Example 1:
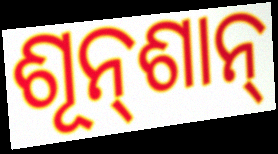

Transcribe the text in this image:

ଶୂନ୍‌ଶାନ୍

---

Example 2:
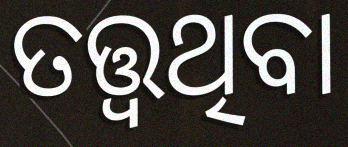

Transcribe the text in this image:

ତତ୍ତ୍ୱଥିବା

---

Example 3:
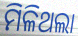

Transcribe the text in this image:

ମିଳିଥଲା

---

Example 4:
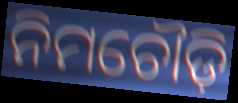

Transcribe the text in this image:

ନିମଚୌଡ଼ି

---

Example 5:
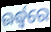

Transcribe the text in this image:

ଊର୍ଦ୍ଧ୍ୱରେ